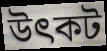
উৎকট